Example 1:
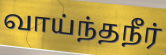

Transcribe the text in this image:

வாய்ந்தநீர்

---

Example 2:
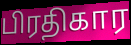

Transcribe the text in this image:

பிரதிகார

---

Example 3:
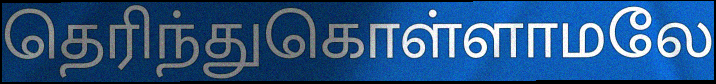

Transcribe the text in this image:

தெரிந்துகொள்ளாமலே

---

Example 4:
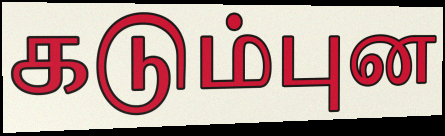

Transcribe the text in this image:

கடும்புன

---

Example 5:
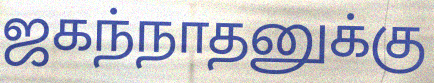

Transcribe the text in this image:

ஜகந்நாதனுக்கு